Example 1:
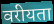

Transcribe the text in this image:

वरीयता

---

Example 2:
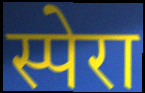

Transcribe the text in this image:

स्पेरा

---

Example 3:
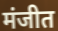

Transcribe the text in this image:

मंजीत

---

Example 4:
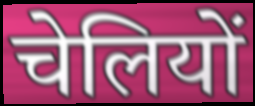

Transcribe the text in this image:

चेलियों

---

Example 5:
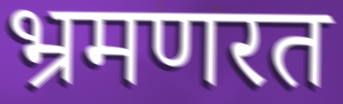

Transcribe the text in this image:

भ्रमणरत